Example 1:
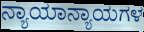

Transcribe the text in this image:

ನ್ಯಾಯಾನ್ಯಾಯಗಳ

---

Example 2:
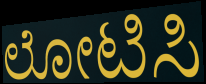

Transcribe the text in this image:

ಲೋಟಿಸಿ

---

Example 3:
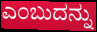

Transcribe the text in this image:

ಎಂಬುದನ್ನು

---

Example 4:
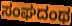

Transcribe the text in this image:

ಸಂಘದಂಥ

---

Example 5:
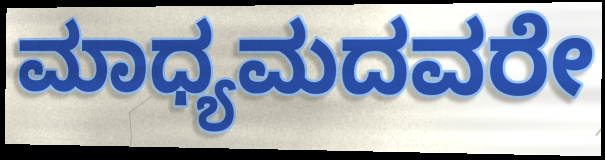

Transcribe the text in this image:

ಮಾಧ್ಯಮದವರೇ